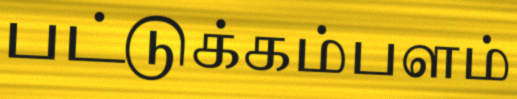
பட்டுக்கம்பளம்